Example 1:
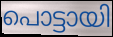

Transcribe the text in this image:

പൊട്ടായി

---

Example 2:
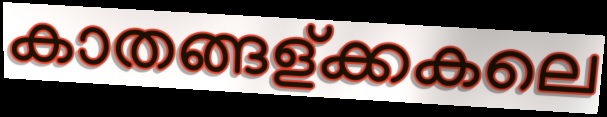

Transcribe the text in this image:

കാതങ്ങള്ക്കകലെ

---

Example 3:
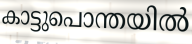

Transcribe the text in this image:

കാട്ടുപൊന്തയിൽ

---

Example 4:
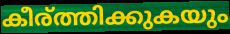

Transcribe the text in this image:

കീര്ത്തിക്കുകയും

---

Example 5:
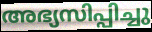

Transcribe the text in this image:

അഭ്യസിപ്പിച്ചു